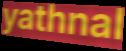
yathnal